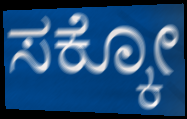
ಸಕ್ಕೋ